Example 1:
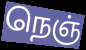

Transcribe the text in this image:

நெஞ்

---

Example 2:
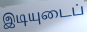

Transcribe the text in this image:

இடியுடைப்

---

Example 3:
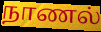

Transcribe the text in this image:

நாணல்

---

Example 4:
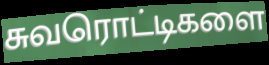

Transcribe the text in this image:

சுவரொட்டிகளை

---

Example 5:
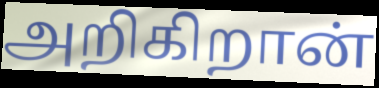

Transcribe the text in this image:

அறிகிறான்